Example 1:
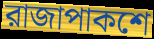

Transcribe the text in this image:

রাজাপাকশে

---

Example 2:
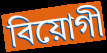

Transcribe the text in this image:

বিয়োগী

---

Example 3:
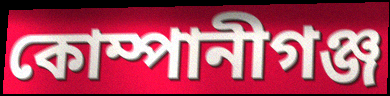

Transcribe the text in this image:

কোম্পানীগঞ্জ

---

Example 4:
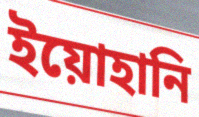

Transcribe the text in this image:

ইয়োহানি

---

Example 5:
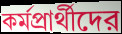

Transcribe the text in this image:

কর্মপ্রার্থীদের